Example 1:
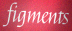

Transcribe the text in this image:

figments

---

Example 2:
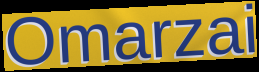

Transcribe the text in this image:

Omarzai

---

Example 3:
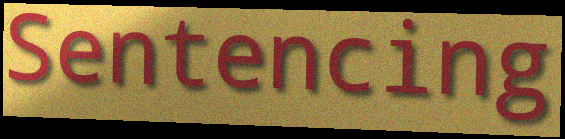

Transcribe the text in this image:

Sentencing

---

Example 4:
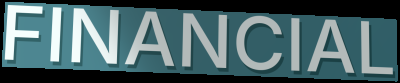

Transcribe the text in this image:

FINANCIAL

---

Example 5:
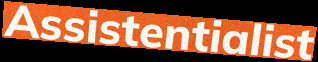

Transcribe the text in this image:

Assistentialist